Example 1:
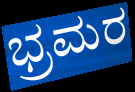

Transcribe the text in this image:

ಭ್ರಮರ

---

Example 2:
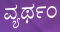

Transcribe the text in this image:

ವ್ಯರ್ಥಂ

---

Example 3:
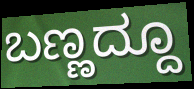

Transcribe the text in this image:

ಬಣ್ಣದ್ದೂ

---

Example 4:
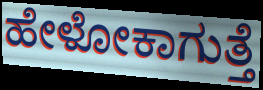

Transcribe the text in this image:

ಹೇಳೋಕಾಗುತ್ತೆ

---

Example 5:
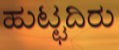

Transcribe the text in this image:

ಹುಟ್ಟದಿರು